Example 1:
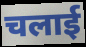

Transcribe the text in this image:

चलाई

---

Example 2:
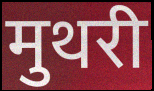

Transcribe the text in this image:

मुथरी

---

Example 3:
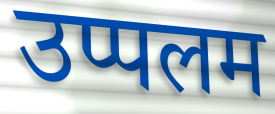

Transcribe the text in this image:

उप्पलम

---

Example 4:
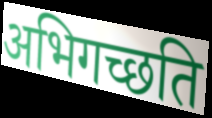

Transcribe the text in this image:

अभिगच्छति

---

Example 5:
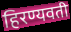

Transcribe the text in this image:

हिरण्यवती